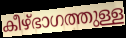
കീഴ്ഭാഗത്തുള്ള